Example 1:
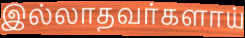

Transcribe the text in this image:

இல்லாதவர்களாய்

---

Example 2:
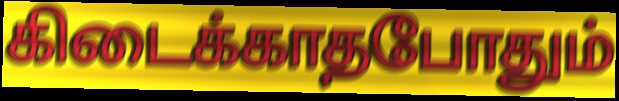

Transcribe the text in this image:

கிடைக்காதபோதும்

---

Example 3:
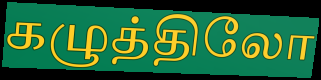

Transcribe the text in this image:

கழுத்திலோ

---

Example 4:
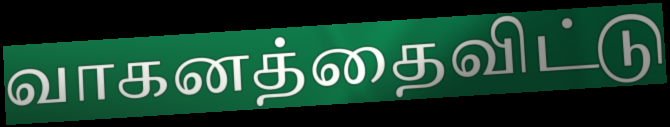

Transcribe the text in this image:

வாகனத்தைவிட்டு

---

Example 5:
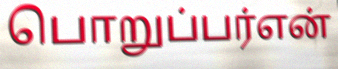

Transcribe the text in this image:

பொறுப்பர்என்